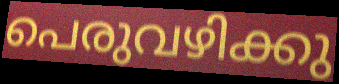
പെരുവഴിക്കു